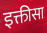
इक्तीसा